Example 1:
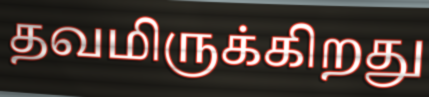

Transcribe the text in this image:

தவமிருக்கிறது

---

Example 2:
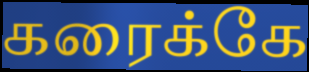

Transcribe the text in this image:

கரைக்கே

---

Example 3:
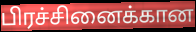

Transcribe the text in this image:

பிரச்சினைக்கான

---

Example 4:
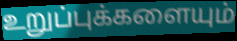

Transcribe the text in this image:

உறுப்புக்களையும்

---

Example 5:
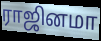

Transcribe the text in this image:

ராஜினமா